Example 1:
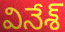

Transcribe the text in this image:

వినేశ్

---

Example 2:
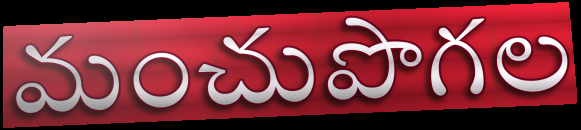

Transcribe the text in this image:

మంచుపొగల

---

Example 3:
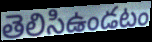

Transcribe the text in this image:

తెలిసిఉండటం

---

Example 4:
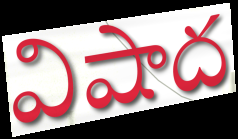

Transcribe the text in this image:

విషాద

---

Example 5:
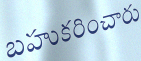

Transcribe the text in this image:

బహుకరించారు